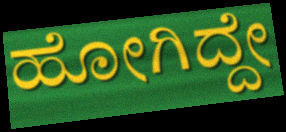
ಹೋಗಿದ್ದೇ